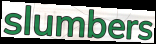
slumbers